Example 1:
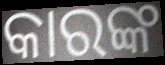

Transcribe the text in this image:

କାରଙ୍କ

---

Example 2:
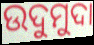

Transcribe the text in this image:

ଉଦୁମୁଦା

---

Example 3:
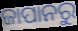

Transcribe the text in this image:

ଜାପାନରୁ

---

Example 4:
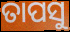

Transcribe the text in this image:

ତାପସୁ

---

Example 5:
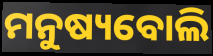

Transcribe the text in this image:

ମନୁଷ୍ୟବୋଲି